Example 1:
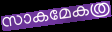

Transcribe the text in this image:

സാകമേകത്ര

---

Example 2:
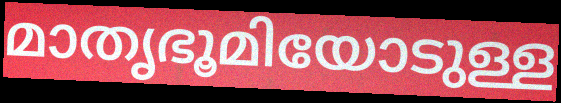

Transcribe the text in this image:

മാതൃഭൂമിയോടുള്ള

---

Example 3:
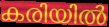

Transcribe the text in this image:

കരിയിൽ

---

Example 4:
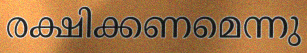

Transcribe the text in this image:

രക്ഷിക്കണമെന്നു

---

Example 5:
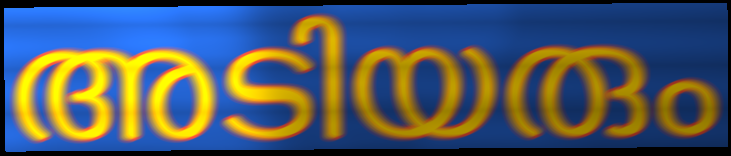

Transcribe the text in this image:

അടിയരും